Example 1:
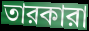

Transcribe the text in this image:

তারকারা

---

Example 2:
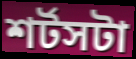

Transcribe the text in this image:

শর্টসটা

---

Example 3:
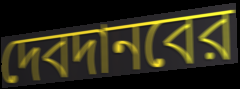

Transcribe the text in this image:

দেবদানবের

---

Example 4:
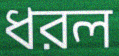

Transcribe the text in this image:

ধরল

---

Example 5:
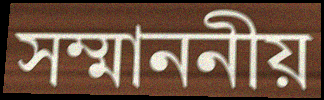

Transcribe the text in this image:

সম্মাননীয়